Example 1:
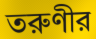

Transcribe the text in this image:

তরুণীর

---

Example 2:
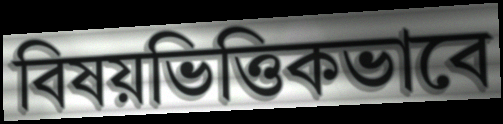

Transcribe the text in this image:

বিষয়ভিত্তিকভাবে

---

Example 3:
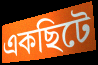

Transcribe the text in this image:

একছিটে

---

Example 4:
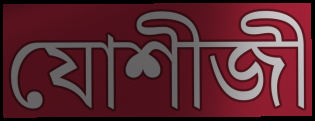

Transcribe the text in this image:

যোশীজী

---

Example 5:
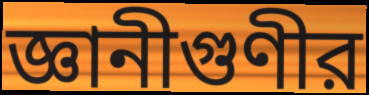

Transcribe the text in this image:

জ্ঞানীগুণীর